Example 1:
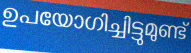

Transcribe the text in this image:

ഉപയോഗിച്ചിട്ടുമുണ്ട്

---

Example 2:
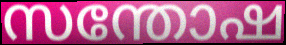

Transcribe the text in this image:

സന്തോഷ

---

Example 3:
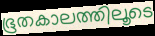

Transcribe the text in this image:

ഭൂതകാലത്തിലൂടെ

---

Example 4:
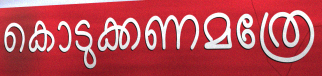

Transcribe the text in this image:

കൊടുക്കണമത്രേ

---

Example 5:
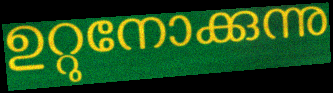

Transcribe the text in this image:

ഉറ്റുനോക്കുന്നു